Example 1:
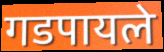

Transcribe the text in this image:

गडपायले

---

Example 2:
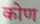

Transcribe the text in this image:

कोण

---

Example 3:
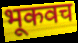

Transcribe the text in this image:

भूकवच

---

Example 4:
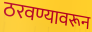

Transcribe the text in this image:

ठरवण्यावरून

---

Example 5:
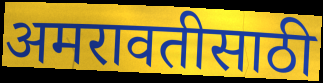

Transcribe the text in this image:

अमरावतीसाठी